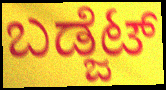
ಬಡ್ಜೆಟ್